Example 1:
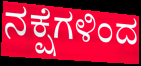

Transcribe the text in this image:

ನಕ್ಷೆಗಳಿಂದ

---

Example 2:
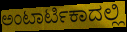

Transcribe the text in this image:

ಅಂಟಾರ್ಟಿಕಾದಲ್ಲಿ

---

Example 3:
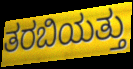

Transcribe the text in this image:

ತರಬಿಯತ್ತು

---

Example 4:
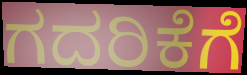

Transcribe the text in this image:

ಗದರಿಕೆಗೆ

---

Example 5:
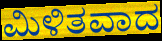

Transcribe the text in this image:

ಮಿಳಿತವಾದ